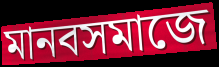
মানবসমাজে